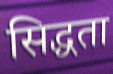
सिद्धता